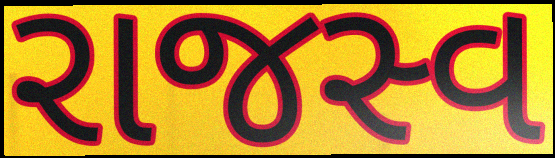
રાજસ્વ